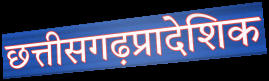
छत्तीसगढ़प्रादेशिक